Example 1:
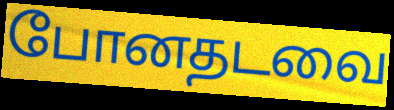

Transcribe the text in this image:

போனதடவை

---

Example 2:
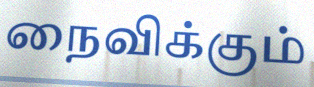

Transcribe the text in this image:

நைவிக்கும்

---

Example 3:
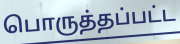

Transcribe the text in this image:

பொருத்தப்பட்ட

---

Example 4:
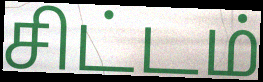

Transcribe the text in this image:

சிட்டம்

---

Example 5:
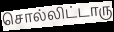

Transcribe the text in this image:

சொல்லிட்டாரு